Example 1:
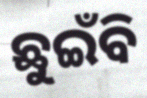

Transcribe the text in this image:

ଛୁଇଁବି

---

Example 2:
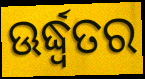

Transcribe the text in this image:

ଊର୍ଦ୍ଧ୍ଵତର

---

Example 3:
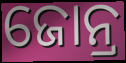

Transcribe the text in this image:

ଜୋନ୍ର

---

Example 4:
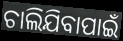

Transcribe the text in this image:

ଚାଲିଯିବାପାଇଁ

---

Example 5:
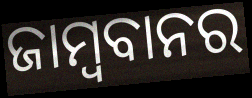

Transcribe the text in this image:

ଜାମ୍ବବାନର